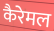
कैरेमल